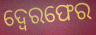
ଦ୍ବେରଫେର